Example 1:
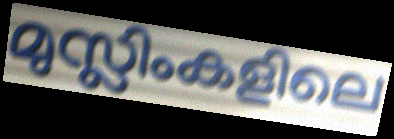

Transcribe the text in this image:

മുസ്ലിംകളിലെ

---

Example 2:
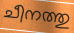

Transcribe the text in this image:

ചീനത്തു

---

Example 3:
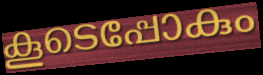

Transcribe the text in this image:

കൂടെപ്പോകും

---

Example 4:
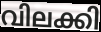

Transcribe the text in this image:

വിലക്കി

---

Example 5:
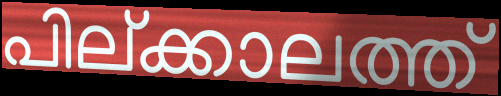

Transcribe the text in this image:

പില്ക്കാലത്ത്